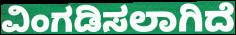
ವಿಂಗಡಿಸಲಾಗಿದೆ